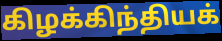
கிழக்கிந்தியக்